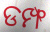
ଡମ୍ଫ